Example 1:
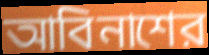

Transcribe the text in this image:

আবিনাশের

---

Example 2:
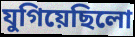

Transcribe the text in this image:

যুগিয়েছিলো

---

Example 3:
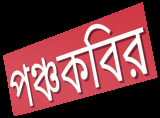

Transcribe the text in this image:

পঞ্চকবির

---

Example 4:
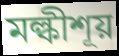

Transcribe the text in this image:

মল্কীশূয়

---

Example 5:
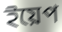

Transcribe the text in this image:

ইয়েপ